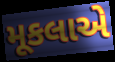
મૂકલાએ